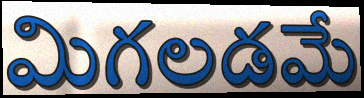
మిగలడమే